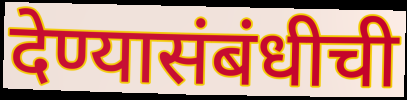
देण्यासंबंधीची